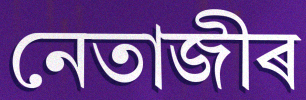
নেতাজীৰ